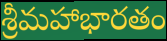
శ్రీమహాభారతం